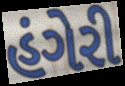
હંગેરી